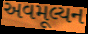
અવમૂલ્યન